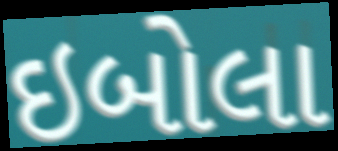
ઇબોલા